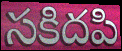
సకిదపి